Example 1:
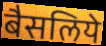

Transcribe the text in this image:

बैसलिये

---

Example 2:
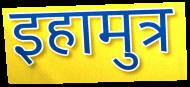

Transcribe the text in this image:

इहामुत्र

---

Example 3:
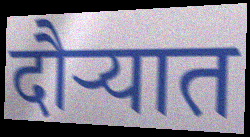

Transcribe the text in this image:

दौर्‍यात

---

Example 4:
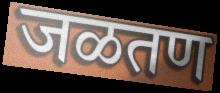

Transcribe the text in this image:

जळतण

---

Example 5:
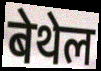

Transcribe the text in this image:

बेथेल